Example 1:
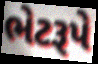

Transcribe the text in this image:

ભેટરૂપે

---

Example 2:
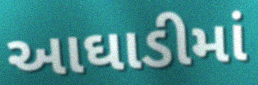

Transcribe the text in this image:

આઘાડીમાં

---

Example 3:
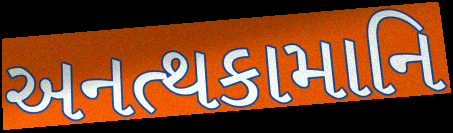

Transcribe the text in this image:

અનત્થકામાનિ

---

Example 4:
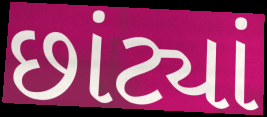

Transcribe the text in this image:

છાંટ્યાં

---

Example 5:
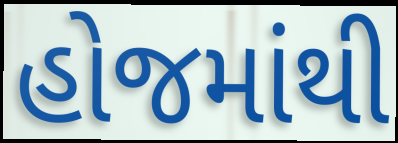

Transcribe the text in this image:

હોજમાંથી